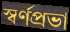
স্বর্ণপ্রভা